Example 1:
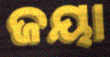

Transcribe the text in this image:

ଜୟା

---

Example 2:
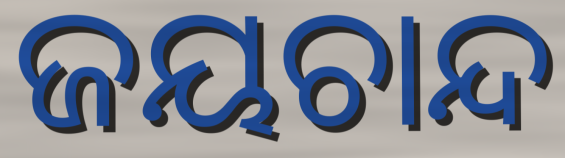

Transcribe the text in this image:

ଜୟଚାନ୍ଦ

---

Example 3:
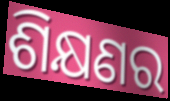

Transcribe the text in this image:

ଶିକ୍ଷଣର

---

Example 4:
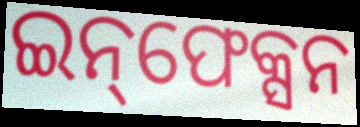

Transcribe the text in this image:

ଇନ୍‌ଫେକ୍ସନ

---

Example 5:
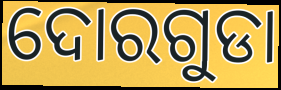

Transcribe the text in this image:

ଦୋରଗୁଡା